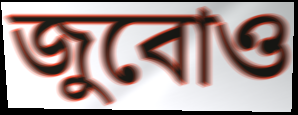
জুবোও